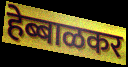
हेब्बाळकर